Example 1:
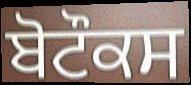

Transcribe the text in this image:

ਬੋਟੌਕਸ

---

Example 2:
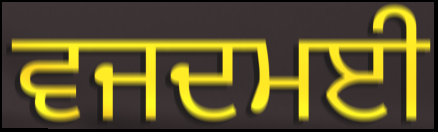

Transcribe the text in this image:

ਵਜਦਮਈ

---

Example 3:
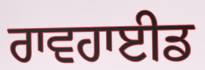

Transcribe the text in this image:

ਰਾਵਹਾਈਡ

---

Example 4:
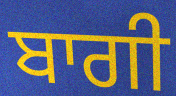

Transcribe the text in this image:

ਬਾਗੀ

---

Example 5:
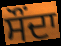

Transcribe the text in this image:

ਸੌਂਦਾ